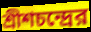
শ্রীশচন্দ্রের